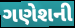
ગણેશની